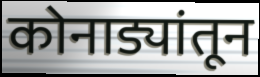
कोनाड्यांतून